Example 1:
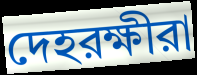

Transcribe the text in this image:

দেহরক্ষীরা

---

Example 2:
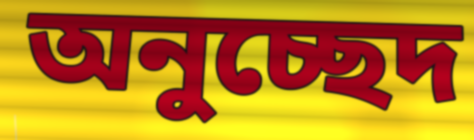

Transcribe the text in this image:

অনুচ্ছেদ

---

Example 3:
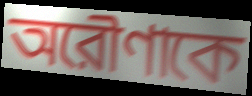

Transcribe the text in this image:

অরৌণাকে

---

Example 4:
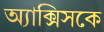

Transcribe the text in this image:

অ্যাক্সিসকে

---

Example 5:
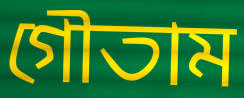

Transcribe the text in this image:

গৌতাম